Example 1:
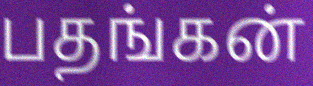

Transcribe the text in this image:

பதங்கன்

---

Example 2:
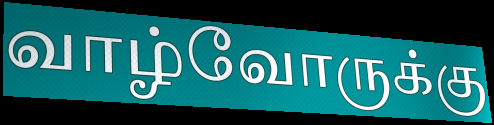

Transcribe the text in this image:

வாழ்வோருக்கு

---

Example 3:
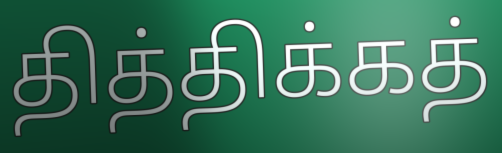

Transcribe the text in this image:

தித்திக்கத்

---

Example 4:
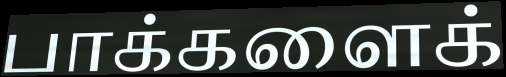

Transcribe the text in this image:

பாக்களைக்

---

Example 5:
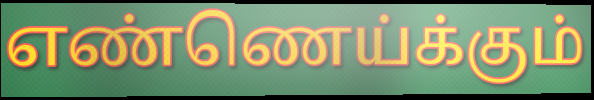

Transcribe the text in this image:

எண்ணெய்க்கும்